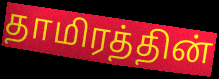
தாமிரத்தின்